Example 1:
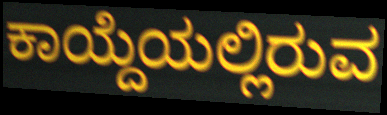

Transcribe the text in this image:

ಕಾಯ್ದೆಯಲ್ಲಿರುವ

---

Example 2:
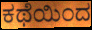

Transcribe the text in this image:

ಕಥೆಯಿಂದ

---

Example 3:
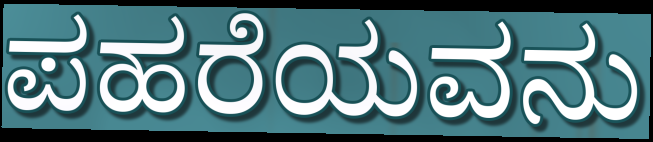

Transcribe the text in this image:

ಪಹರೆಯವನು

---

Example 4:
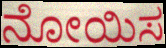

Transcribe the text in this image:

ನೋಯಿಸ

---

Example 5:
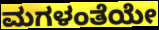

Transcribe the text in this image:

ಮಗಳಂತೆಯೇ